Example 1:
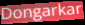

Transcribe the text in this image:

Dongarkar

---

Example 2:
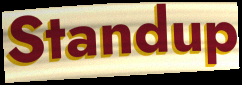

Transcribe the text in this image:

Standup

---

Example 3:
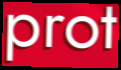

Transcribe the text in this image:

prot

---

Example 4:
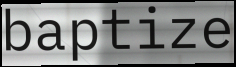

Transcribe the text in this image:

baptize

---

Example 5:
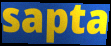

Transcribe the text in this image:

sapta